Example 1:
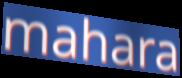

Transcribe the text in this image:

mahara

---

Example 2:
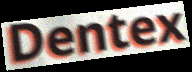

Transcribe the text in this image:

Dentex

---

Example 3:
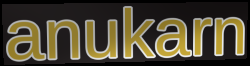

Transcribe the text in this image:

anukarn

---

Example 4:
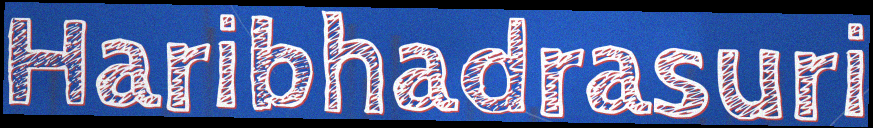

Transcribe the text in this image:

Haribhadrasuri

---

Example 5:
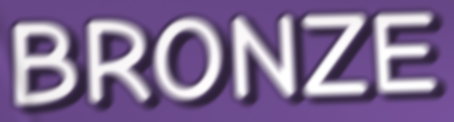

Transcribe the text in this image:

BRONZE